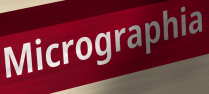
Micrographia